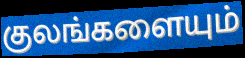
குலங்களையும்